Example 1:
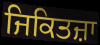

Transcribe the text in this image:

ਜਿਕਿਤਜ਼ਾ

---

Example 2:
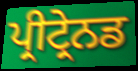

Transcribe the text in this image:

ਪ੍ਰੀਟ੍ਰੇਨਡ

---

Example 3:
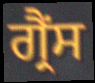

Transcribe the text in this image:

ਗ੍ਰੈਂਸ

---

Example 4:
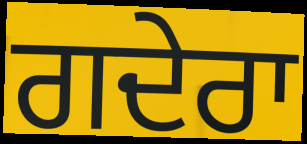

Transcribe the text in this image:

ਗਦੇਰਾ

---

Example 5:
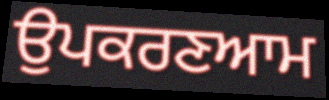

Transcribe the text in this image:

ਉਪਕਰਣਆਮ